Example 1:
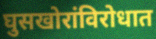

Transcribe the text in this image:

घुसखोरांविरोधात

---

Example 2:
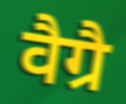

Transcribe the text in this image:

वैग्रै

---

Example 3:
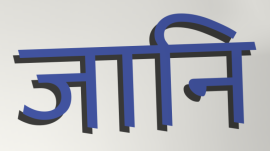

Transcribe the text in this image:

जानि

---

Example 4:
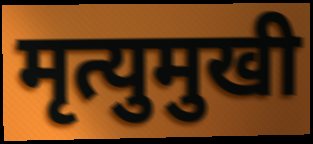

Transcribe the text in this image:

मृत्युमुखी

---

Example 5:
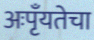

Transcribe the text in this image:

अःपृँयतेचा